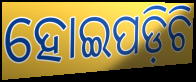
ହୋଇପଡ଼ିଚି